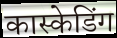
कास्केडिंग